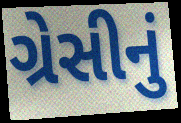
ગ્રેસીનું